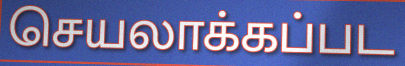
செயலாக்கப்பட